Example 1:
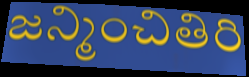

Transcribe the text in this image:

జన్మించితిరి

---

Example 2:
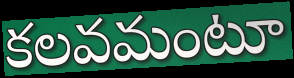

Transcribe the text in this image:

కలవమంటూ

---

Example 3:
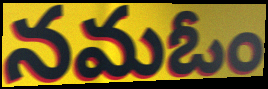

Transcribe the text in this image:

నమఓం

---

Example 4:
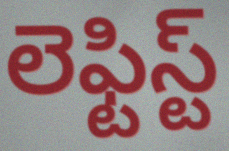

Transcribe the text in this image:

లెఫ్టిస్ట్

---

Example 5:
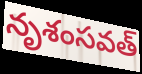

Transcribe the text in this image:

నృశంసవత్